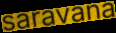
saravana